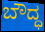
ಬೌದ್ಧ